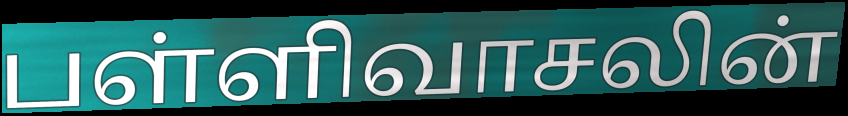
பள்ளிவாசலின்